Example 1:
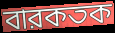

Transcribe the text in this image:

বারকতক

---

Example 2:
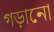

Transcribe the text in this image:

গড়ানো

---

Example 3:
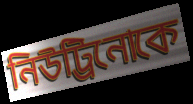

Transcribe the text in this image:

নিউট্রিনোকে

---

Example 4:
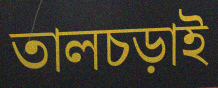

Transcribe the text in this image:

তালচড়াই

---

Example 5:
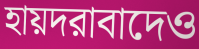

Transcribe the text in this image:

হায়দরাবাদেও